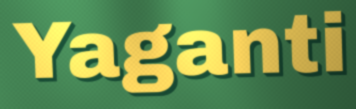
Yaganti